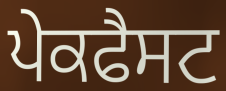
ਪੇਕਫੈਸਟ